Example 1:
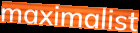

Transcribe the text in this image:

maximalist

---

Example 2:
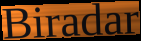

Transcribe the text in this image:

Biradar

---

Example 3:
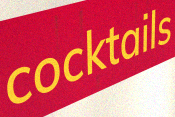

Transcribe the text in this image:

cocktails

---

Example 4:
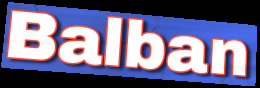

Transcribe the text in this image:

Balban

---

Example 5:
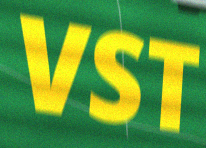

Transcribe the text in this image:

VST